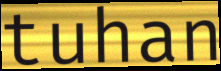
tuhan